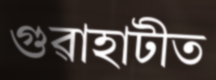
গুৱাহাটীত